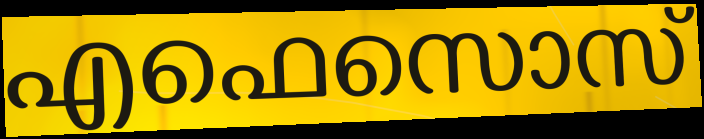
എഫെസൊസ്